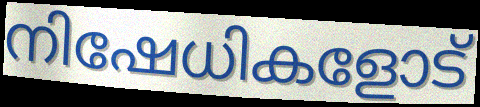
നിഷേധികളോട്